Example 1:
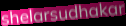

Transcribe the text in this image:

shelarsudhakar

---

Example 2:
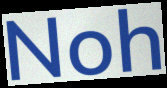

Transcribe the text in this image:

Noh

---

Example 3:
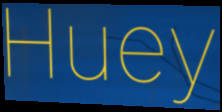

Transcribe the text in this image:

Huey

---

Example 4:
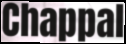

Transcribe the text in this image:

Chappal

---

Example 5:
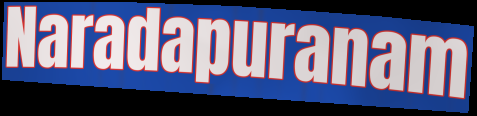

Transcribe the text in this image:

Naradapuranam